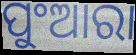
ପୁଂଆରା